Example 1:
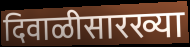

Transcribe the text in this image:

दिवाळीसारख्या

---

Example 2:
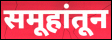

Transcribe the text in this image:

समूहांतून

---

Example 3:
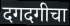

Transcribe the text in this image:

दगदगीचा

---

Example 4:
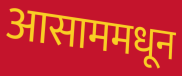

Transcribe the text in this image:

आसाममधून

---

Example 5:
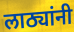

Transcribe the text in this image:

लाठ्यांनी